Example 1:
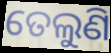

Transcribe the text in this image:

ତେଲୁଣି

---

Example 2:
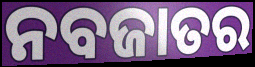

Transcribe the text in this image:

ନବଜାତର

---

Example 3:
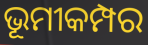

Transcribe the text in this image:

ଭୂମୀକମ୍ପର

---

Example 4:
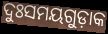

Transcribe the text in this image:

ଦୁଃସମୟଗୁଡ଼ାକ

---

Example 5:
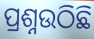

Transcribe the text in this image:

ପ୍ରଶ୍ନଉଠିଛି